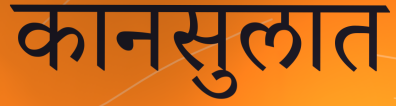
कानसुलात